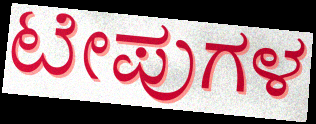
ಟೇಪುಗಳ